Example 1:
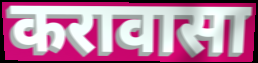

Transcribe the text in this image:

करावासा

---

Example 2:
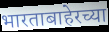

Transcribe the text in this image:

भारताबाहेरच्या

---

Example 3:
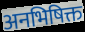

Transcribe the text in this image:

अनभिषिक्त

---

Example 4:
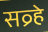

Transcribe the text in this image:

सव्र्हे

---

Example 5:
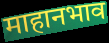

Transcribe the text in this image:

माहानभाव